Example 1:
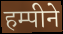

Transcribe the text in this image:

हम्पीने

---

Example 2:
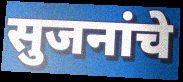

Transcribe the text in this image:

सुजनांचे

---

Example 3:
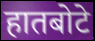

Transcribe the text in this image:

हातबोटे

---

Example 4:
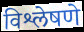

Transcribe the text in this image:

विश्लेषणे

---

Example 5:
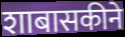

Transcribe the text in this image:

शाबासकीने